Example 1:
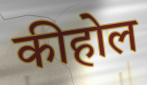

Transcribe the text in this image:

कीहोल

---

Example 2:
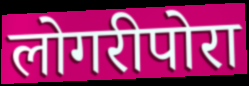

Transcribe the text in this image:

लोगरीपोरा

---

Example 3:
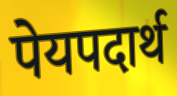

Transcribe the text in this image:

पेयपदार्थ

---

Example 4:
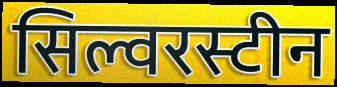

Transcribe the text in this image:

सिल्वरस्टीन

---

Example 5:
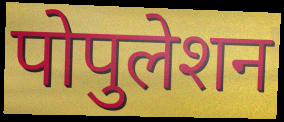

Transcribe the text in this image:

पोपुलेशन